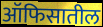
ऑफिसातील